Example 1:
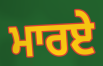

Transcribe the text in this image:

ਮਾਰਏ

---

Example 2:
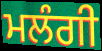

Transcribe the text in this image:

ਮਲੰਗੀ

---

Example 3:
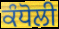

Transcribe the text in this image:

ਕੰਧੋਲੀ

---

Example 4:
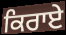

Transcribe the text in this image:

ਕਿਰਾਏ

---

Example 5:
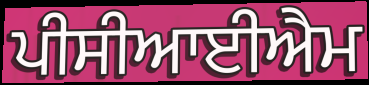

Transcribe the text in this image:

ਪੀਸੀਆਈਐਮ